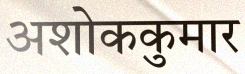
अशोककुमार